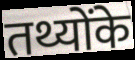
तथ्योंके